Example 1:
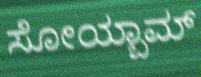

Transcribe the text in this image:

ಸೋಯ್ಬಾಮ್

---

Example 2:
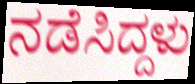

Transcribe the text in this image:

ನಡೆಸಿದ್ದಳು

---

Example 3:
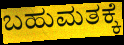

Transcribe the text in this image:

ಬಹುಮತಕ್ಕೆ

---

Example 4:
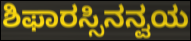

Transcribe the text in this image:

ಶಿಫಾರಸ್ಸಿನನ್ವಯ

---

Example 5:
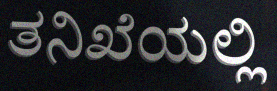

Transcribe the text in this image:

ತನಿಖೆಯಲ್ಲಿ